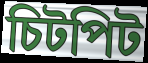
চিটপিট